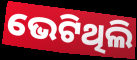
ଭେଟିଥିଲି